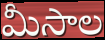
మీసాల